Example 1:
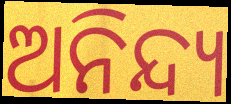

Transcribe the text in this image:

ଅନିନ୍ଦ୍ୟ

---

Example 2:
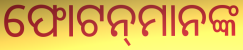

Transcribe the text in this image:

ଫୋଟନ୍‍ମାନଙ୍କ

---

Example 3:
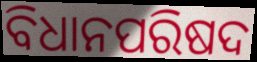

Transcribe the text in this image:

ବିଧାନପରିଷଦ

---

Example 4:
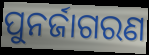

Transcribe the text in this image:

ପୁନର୍ଜାଗରଣ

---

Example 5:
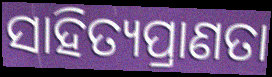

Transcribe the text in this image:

ସାହିତ୍ୟପ୍ରାଣତା